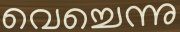
വെച്ചെന്നു